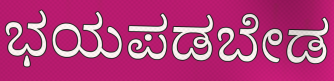
ಭಯಪಡಬೇಡ